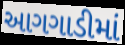
આગગાડીમાં